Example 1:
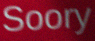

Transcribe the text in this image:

Soory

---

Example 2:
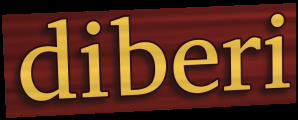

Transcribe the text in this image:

diberi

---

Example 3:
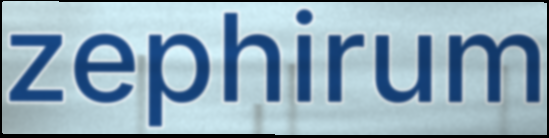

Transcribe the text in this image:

zephirum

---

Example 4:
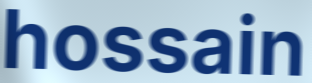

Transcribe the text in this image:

hossain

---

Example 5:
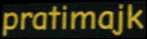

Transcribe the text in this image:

pratimajk